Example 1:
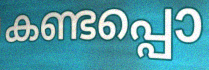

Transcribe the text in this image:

കണ്ടപ്പൊ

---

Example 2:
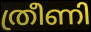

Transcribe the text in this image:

ത്രീണി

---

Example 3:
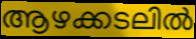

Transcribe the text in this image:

ആഴക്കടലിൽ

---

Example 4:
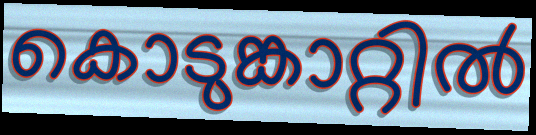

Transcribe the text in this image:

കൊടുങ്കാറ്റിൽ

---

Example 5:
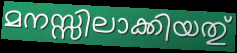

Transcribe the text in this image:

മനസ്സിലാക്കിയതു്